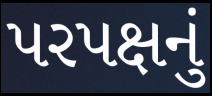
પરપક્ષનું